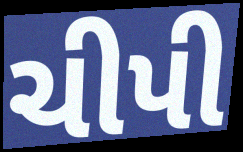
ચીપી